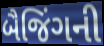
બૈજિંગની